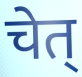
चेत्